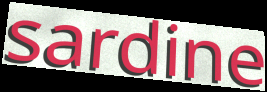
sardine